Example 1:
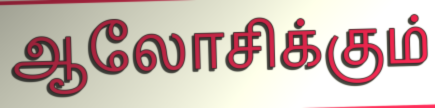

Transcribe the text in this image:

ஆலோசிக்கும்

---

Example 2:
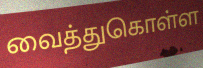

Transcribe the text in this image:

வைத்துகொள்ள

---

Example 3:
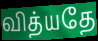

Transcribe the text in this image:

வித்யதே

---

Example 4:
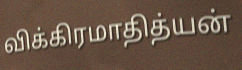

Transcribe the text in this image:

விக்கிரமாதித்யன்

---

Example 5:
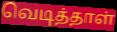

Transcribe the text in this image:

வெடித்தாள்